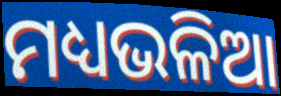
ମଧ୍ୟଭଳିଆ